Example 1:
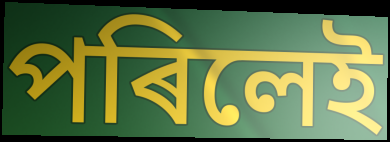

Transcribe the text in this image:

পৰিলেই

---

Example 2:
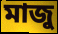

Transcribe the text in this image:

মাজু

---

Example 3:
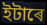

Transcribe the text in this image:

ইটাৰে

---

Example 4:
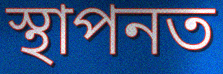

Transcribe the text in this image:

স্থাপনত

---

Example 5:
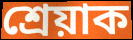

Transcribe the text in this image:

শ্ৰেয়াক